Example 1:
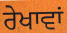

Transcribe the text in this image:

ਰੇਖਾਵਾਂ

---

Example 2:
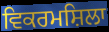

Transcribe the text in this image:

ਵਿਕਰਮਸ਼ਿਲਾ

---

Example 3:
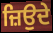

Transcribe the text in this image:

ਜ਼ਿਉਦੇ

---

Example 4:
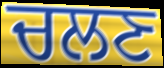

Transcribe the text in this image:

ਚਲਣ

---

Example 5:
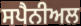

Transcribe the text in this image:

ਸਪੈਨੀਅਲ